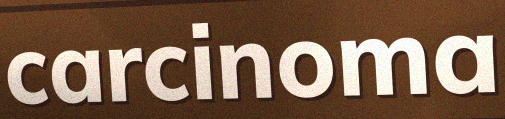
carcinoma